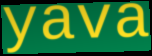
yava